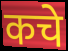
कचे